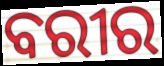
ବରୀର